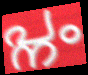
പ്നം